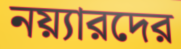
নয়্যারদের